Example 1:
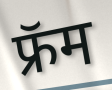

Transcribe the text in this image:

फ्रॅम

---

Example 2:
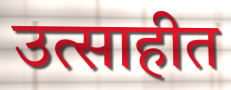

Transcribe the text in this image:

उत्साहीत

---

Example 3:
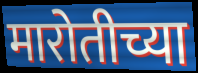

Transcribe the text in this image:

मारोतीच्या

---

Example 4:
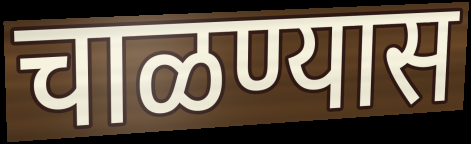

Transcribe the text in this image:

चाळण्यास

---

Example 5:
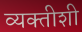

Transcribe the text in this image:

व्यक्‍तीशी